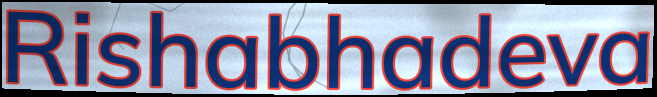
Rishabhadeva